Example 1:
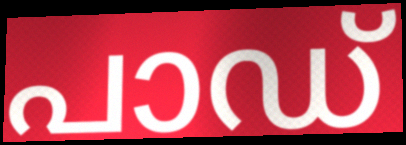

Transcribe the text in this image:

പാഡ്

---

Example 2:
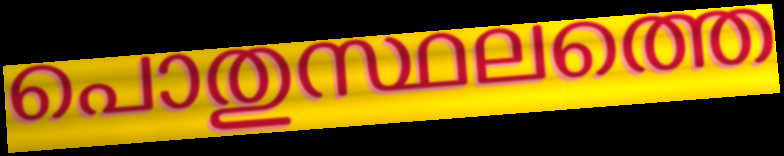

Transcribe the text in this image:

പൊതുസ്ഥലത്തെ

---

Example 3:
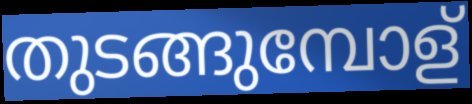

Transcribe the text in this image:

തുടങ്ങുമ്പോള്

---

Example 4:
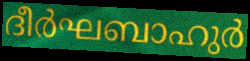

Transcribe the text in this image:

ദീർഘബാഹുർ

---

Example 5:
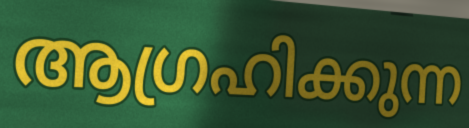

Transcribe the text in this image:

ആഗ്രഹിക്കുന്ന